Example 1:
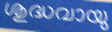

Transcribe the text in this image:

ശുദ്ധവായു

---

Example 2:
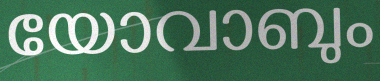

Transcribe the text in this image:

യോവാബും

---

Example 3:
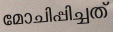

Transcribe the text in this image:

മോചിപ്പിച്ചത്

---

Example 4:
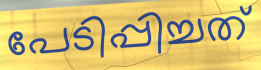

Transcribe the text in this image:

പേടിപ്പിച്ചത്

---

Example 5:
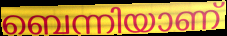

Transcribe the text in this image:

ബെന്നിയാണ്